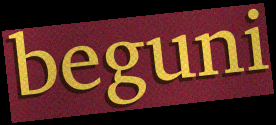
beguni